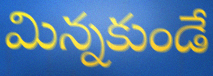
మిన్నకుండే